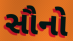
સૌનો